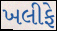
ખલીફે